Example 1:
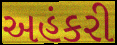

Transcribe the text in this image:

અહંકરી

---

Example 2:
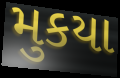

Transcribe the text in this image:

મુકયા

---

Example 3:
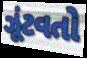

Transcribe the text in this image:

ઝૂંટવતો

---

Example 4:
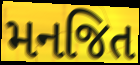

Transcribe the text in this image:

મનજિત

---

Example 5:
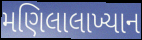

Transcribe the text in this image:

મણિલાલાખ્યાન